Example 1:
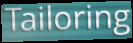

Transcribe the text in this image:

Tailoring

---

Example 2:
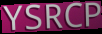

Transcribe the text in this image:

YSRCP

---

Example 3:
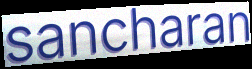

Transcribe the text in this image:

sancharan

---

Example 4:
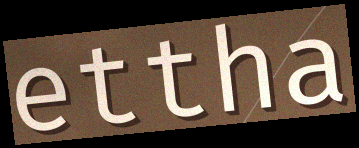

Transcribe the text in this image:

ettha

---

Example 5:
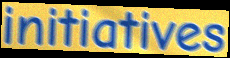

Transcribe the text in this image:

initiatives